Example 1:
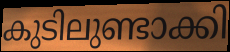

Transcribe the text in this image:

കുടിലുണ്ടാക്കി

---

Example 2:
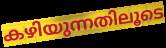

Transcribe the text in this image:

കഴിയുന്നതിലൂടെ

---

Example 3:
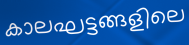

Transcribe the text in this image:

കാലഘട്ടങ്ങളിലെ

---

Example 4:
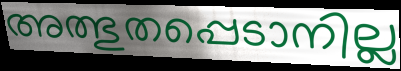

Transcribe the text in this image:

അത്ഭുതപ്പെടാനില്ല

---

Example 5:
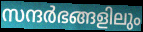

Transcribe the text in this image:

സന്ദർഭങ്ങളിലും